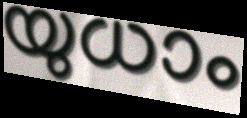
യുധാം